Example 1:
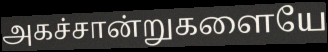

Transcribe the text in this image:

அகச்சான்றுகளையே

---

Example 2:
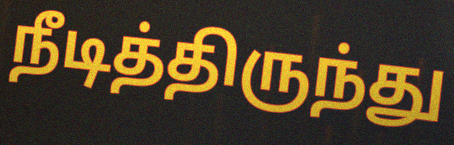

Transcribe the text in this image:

நீடித்திருந்து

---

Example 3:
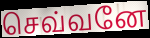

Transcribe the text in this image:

செவ்வனே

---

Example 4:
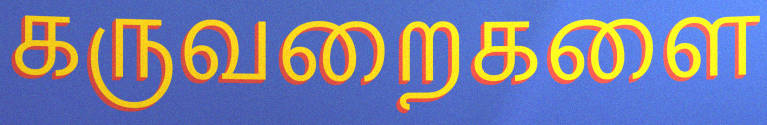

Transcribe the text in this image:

கருவறைகளை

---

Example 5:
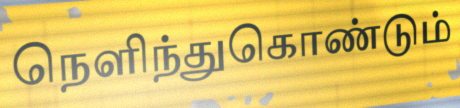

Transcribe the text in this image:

நெளிந்துகொண்டும்